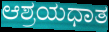
ಆಶ್ರಯಧಾತ